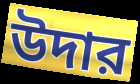
উদার